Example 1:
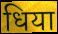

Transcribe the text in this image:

धिया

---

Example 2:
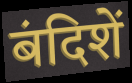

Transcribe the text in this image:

बंदिशें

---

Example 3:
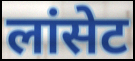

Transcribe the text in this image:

लांसेट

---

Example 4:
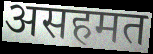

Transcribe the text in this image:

असहमत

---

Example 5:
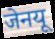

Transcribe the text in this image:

जेनयू